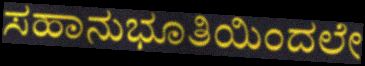
ಸಹಾನುಭೂತಿಯಿಂದಲೇ